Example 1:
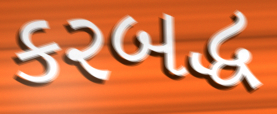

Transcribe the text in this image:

કરબદ્ધ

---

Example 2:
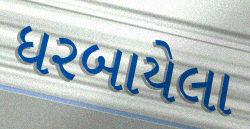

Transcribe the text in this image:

ધરબાયેલા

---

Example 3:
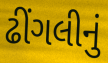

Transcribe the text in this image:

ઢીંગલીનું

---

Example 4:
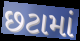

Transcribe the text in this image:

છટામાં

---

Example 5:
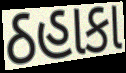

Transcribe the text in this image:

ઠહાકા